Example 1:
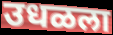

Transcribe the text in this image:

उधळला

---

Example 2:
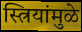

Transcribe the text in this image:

स्त्रियांमुळे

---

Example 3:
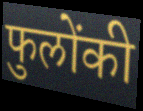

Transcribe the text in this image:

फुलोंकी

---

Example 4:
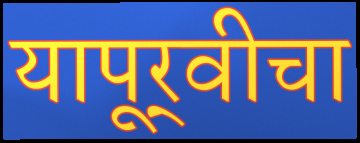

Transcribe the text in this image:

यापूर्वीचा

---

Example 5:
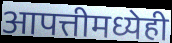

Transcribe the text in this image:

आपत्तीमध्येही